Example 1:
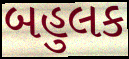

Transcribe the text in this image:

બહુલક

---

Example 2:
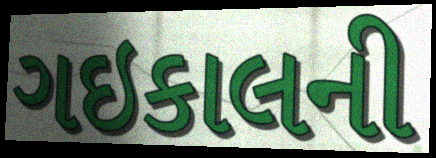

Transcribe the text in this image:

ગઇકાલની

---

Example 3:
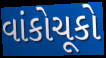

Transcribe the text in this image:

વાંકોચૂકો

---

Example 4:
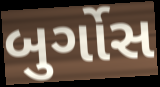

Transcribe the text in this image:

બુર્ગોસ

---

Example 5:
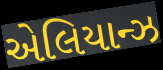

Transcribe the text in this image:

એલિયાન્ઝ